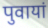
पुवायां